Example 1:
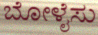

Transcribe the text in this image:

ಬೋಳೈಸು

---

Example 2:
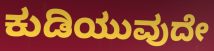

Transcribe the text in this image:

ಕುಡಿಯುವುದೇ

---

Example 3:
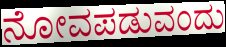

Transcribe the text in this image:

ನೋವಪಡುವಂದು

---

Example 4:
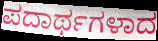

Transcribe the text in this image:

ಪದಾರ್ಥಗಳಾದ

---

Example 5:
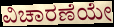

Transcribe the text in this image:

ವಿಚಾರಣೆಯೇ